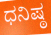
ಧನಿಷ್ಠ